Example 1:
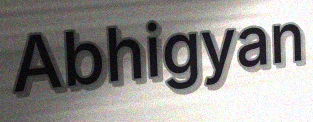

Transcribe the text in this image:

Abhigyan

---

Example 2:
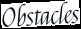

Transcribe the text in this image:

Obstacles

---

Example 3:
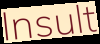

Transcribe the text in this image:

Insult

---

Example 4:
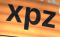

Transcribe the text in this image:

xpz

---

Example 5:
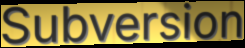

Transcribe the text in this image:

Subversion